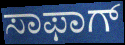
ಸಾಫಾಗ್